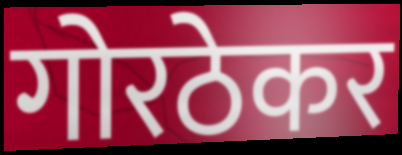
गोरठेकर